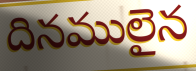
దినములైన